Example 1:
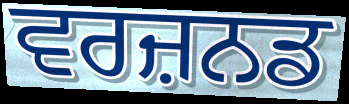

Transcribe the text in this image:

ਵਰਜ਼ਨਡ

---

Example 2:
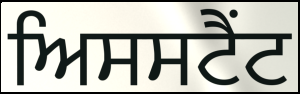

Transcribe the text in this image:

ਅਿਸਸਟੈਂਟ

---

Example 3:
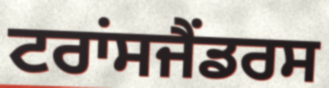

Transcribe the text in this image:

ਟਰਾਂਸਜੈਂਡਰਸ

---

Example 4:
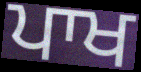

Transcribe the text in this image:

ਪਾਖ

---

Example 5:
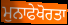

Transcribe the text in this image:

ਮੁਨਾਫੇਖੋਰਤਾ